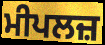
ਮੀਪਲਜ਼